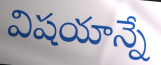
విషయాన్నే